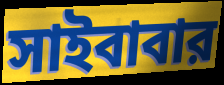
সাইবাবার